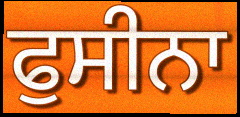
ਫੁਸੀਨਾ